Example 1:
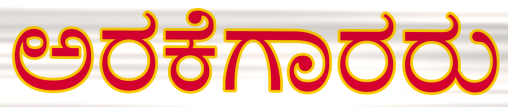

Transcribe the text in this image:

ಅರಕೆಗಾರರು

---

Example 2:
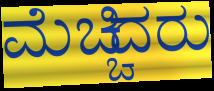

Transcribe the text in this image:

ಮೆಚ್ಚಿದರು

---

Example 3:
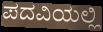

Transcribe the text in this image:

ಪದವಿಯಲ್ಲಿ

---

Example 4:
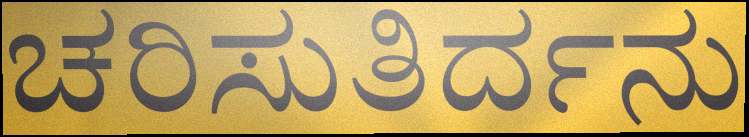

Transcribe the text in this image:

ಚರಿಸುತಿರ್ದನು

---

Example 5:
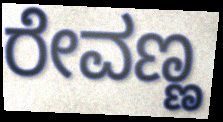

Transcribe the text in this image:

ರೇವಣ್ಣ